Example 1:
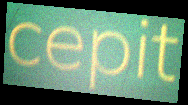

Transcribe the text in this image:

cepit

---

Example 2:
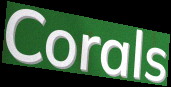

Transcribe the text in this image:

Corals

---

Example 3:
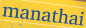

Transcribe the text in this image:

manathai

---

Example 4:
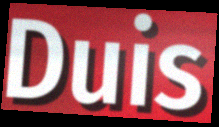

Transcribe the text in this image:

Duis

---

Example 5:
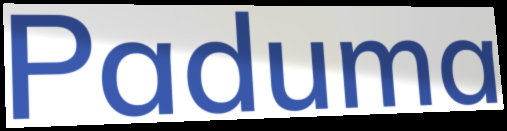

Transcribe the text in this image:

Paduma